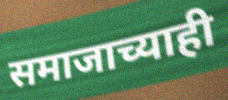
समाजाच्याही